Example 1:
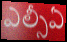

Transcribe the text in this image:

ఎల్సీఏ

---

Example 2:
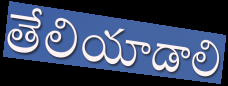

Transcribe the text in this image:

తేలియాడాలి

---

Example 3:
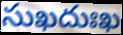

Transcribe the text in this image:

సుఖదుఃఖ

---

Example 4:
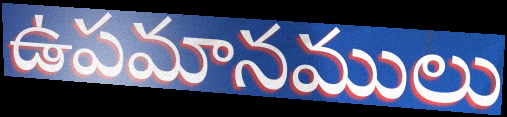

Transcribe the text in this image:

ఉపమానములు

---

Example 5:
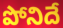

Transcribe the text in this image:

పోనిదే